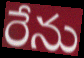
రేను